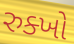
રુક્ખો